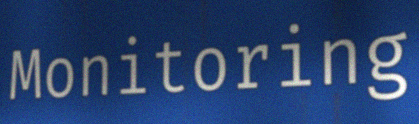
Monitoring